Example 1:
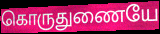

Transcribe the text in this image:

கொருதுணையே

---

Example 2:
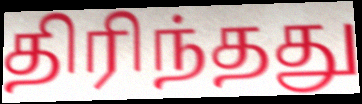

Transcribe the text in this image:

திரிந்தது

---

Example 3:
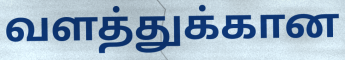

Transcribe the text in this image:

வளத்துக்கான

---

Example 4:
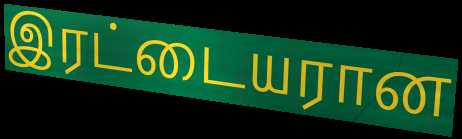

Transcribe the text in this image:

இரட்டையரான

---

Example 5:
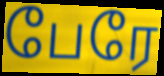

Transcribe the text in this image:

பேரே